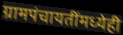
ग्रामपंचायतींमध्येही